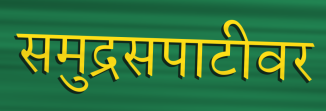
समुद्रसपाटीवर